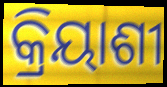
କ୍ରିୟାଶୀ